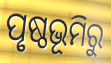
ପୃଷ୍ଠଭୂମିରୁ